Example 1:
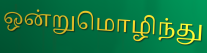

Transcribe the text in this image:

ஒன்றுமொழிந்து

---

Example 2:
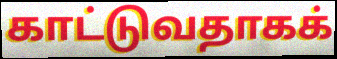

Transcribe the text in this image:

காட்டுவதாகக்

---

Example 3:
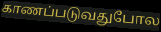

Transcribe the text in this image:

காணப்படுவதுபோல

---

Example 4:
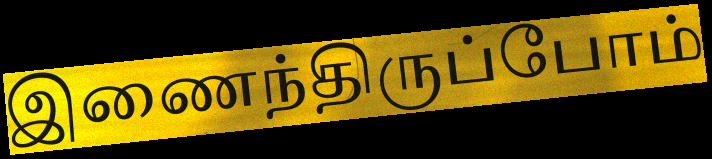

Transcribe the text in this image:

இணைந்திருப்போம்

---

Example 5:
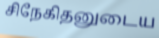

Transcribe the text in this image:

சிநேகிதனுடைய